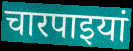
चारपाइयां